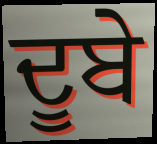
ਦੂਬੇ